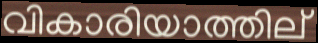
വികാരിയാത്തില്